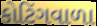
કોટિંગવાળા